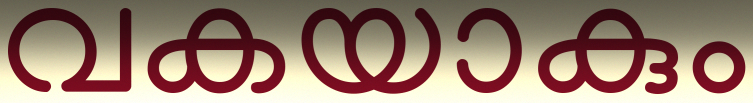
വകയാകും